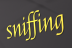
sniffing